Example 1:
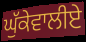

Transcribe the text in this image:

ਘੁੱਕੇਵਾਲੀਏ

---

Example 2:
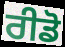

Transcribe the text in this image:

ਰੀਡੋ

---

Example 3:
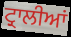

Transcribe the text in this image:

ਟ੍ਰਾਲੀਆਂ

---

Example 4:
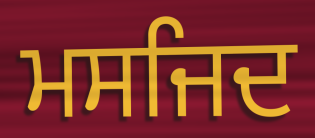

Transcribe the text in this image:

ਮਸਜਿਦ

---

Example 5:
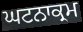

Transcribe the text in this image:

ਘਟਨਾਕ੍ਰਮ